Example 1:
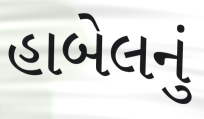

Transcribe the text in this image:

હાબેલનું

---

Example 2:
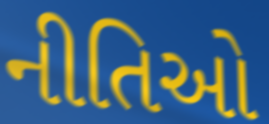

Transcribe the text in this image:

નીતિઓ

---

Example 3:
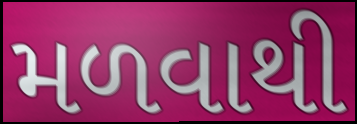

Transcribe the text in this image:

મળવાથી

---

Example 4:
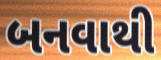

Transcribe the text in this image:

બનવાથી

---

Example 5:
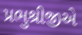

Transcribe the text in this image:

પ્રભુશ્રીજીએ